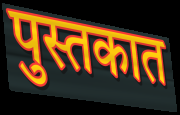
पुस्तकात